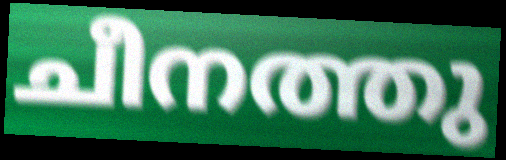
ചീനത്തു